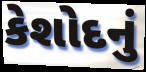
કેશોદનું